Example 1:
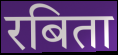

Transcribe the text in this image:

रबिता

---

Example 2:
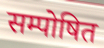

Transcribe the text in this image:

सम्पोषित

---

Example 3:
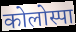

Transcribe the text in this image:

कोलोस्पा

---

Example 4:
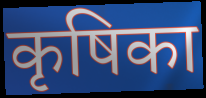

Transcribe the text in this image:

कृषिका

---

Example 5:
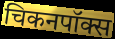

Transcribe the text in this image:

चिकनपॉक्स